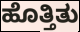
ಹೊತ್ತಿತು